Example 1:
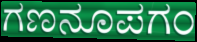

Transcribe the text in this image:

ಗಣನೂಪಗಂ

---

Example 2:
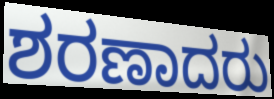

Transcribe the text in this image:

ಶರಣಾದರು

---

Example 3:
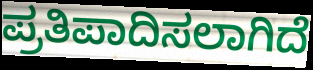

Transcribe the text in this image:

ಪ್ರತಿಪಾದಿಸಲಾಗಿದೆ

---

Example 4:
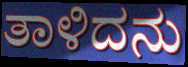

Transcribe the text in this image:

ತಾಳಿದನು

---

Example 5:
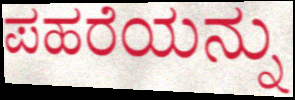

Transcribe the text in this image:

ಪಹರೆಯನ್ನು